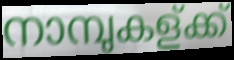
നാമ്പുകള്ക്ക്